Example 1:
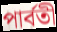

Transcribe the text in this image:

পাৰ্বতী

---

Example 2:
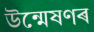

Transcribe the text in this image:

উন্মেষণৰ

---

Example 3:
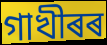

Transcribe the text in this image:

গাখীৰৰ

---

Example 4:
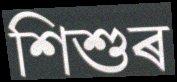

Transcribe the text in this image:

শিশুৰ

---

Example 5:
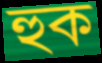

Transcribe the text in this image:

হুক